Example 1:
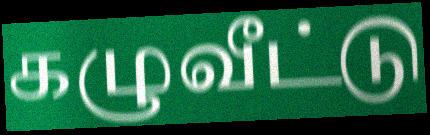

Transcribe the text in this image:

கழுவீட்டு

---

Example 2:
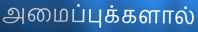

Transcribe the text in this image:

அமைப்புக்களால்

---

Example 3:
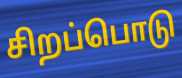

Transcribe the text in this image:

சிறப்பொடு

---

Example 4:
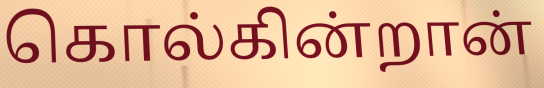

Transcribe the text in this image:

கொல்கின்றான்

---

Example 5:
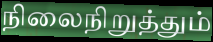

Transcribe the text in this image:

நிலைநிறுத்தும்